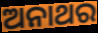
ଅନାଥର